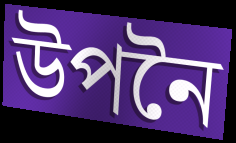
উপনৈ